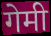
गेमी